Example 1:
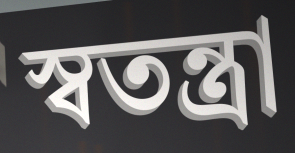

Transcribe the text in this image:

স্বতন্ত্রা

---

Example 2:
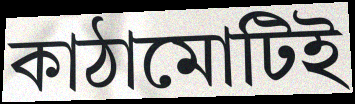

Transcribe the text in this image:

কাঠামোটিই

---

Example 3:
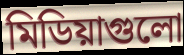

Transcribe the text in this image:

মিডিয়াগুলো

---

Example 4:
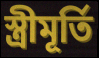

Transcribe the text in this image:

স্ত্রীমূর্তি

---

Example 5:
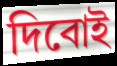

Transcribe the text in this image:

দিবোই